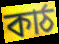
কাঠ